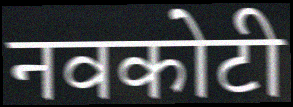
नवकोटी